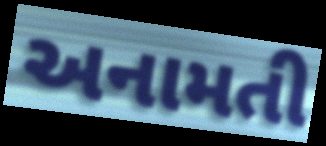
અનામતી